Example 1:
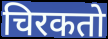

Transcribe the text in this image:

चिरकतो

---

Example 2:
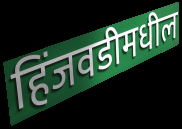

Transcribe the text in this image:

हिंजवडीमधील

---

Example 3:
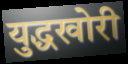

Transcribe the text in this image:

युद्धखोरी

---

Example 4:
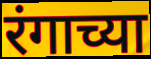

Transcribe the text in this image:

रंगाच्या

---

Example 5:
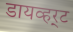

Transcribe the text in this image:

डायव्हर्ट